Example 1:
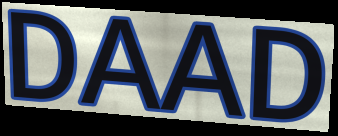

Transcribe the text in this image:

DAAD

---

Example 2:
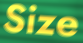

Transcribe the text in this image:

Size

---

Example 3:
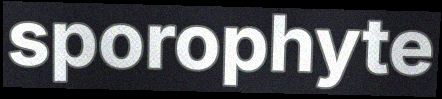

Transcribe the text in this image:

sporophyte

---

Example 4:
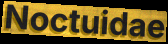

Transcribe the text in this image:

Noctuidae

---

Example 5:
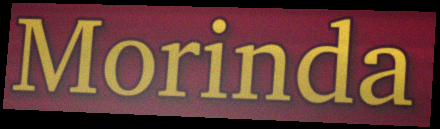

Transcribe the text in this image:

Morinda